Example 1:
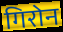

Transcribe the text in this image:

गिरोन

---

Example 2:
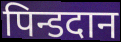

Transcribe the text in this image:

पिन्डदान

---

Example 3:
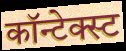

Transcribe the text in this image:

कॉन्टेक्स्ट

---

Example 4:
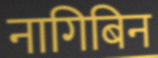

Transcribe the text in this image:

नागिबिन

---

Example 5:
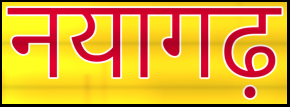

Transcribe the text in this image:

नयागढ़